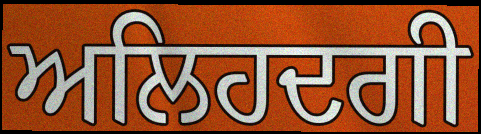
ਅਲਿਹਦਗੀ